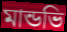
মান্ডভি